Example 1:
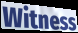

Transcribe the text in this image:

Witness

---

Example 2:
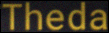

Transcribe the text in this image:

Theda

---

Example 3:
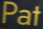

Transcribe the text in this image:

Pat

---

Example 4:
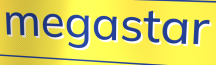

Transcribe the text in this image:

megastar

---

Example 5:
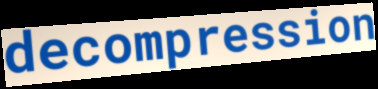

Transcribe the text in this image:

decompression